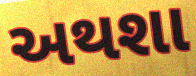
અથશા